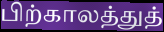
பிற்காலத்துத்